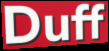
Duff